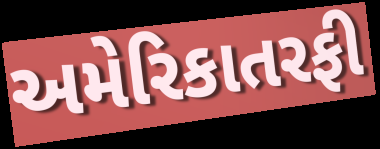
અમેરિકાતરફી